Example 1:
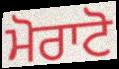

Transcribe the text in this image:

ਮੋਰਾਟੋ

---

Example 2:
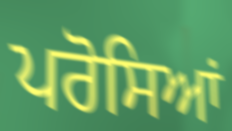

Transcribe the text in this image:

ਪਰੋਸਿਆਂ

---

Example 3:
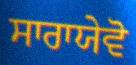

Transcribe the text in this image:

ਸਾਰਾਯੇਵੋ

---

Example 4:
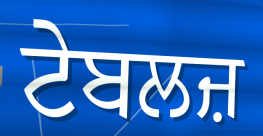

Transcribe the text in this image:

ਟੇਬਲਜ਼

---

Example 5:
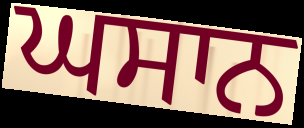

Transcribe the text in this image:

ਘਸਾਨ